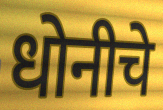
धोनीचे